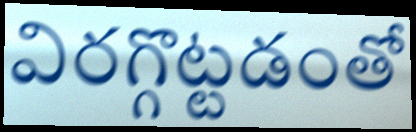
విరగ్గొట్టడంతో